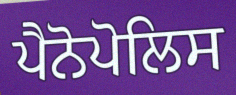
ਪੈਨੋਪੋਲਿਸ